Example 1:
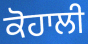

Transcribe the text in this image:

ਕੋਹਾਲੀ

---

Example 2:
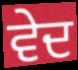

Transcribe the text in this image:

ਵੇਦ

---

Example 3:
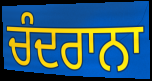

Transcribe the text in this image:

ਚੰਦਰਾਨਾ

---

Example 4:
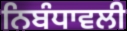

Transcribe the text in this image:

ਨਿਬੰਧਾਵਲੀ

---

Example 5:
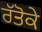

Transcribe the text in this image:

ਰੱਤੋਕੇ